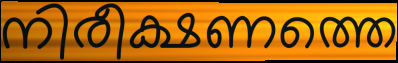
നിരീക്ഷണത്തെ